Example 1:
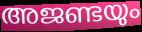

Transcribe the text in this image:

അജണ്ടയും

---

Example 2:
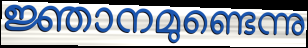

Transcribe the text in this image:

ജ്ഞാനമുണ്ടെന്നു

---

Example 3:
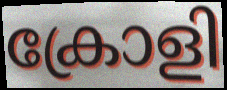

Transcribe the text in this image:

ക്രോളി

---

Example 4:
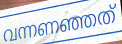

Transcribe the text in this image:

വന്നണഞ്ഞത്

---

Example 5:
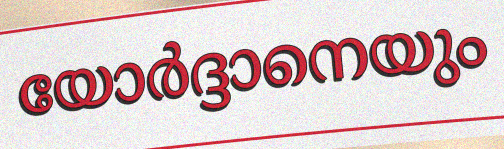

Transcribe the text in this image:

യോർദ്ദാനെയും